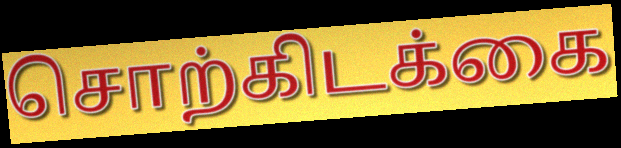
சொற்கிடக்கை